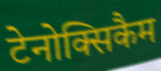
टेनोक्सिकैम